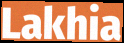
Lakhia